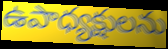
ఉపాధ్యక్షులను